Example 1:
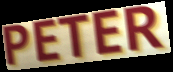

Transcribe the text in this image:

PETER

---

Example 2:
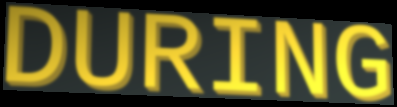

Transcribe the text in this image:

DURING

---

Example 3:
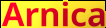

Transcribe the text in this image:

Arnica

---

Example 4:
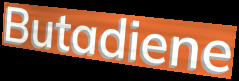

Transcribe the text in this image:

Butadiene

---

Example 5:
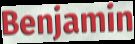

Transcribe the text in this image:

Benjamin